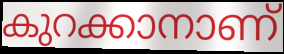
കുറക്കാനാണ്